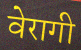
वेरागी